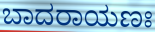
ಬಾದರಾಯಣಃ